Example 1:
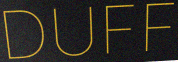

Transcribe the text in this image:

DUFF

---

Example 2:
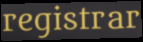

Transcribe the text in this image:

registrar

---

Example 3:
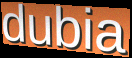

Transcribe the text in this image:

dubia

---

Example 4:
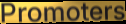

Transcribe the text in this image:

Promoters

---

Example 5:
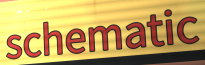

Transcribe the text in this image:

schematic